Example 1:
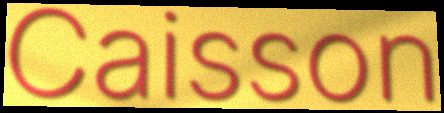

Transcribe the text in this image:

Caisson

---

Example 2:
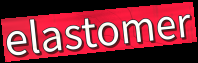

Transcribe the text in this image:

elastomer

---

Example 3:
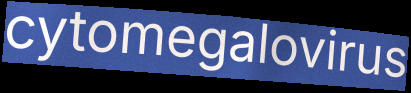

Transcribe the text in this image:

cytomegalovirus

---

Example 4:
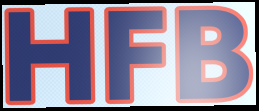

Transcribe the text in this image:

HFB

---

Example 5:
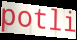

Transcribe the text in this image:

potli